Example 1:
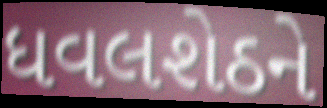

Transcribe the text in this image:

ધવલશેઠને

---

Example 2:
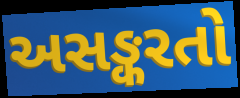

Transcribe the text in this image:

અસઙ્કરતો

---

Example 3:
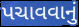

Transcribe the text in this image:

પચાવવાનું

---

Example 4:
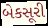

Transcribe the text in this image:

બેકસૂરી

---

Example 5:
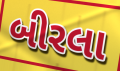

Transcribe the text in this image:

બીરલા